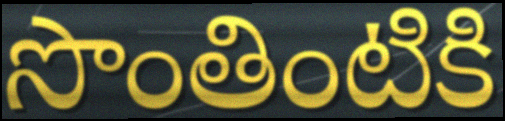
సొంతింటికి